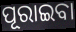
ପୂରାଇବା